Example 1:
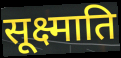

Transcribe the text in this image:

सूक्ष्माति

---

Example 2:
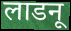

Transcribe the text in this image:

लाडनू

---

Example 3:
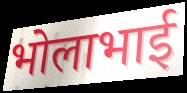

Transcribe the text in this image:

भोलाभाई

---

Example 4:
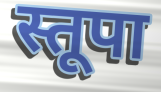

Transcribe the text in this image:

स्तूपा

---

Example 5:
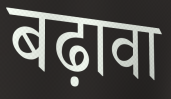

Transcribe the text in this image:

बढ़ावा